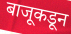
बाजूकडून